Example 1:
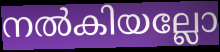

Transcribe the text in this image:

നൽകിയല്ലോ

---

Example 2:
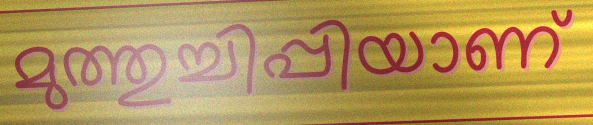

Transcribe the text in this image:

മുത്തുച്ചിപ്പിയാണ്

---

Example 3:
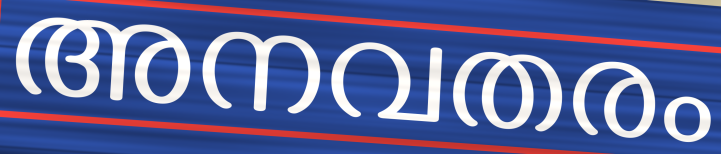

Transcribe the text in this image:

അനവതരം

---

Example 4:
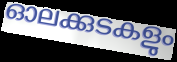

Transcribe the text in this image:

ഓലക്കുടകളും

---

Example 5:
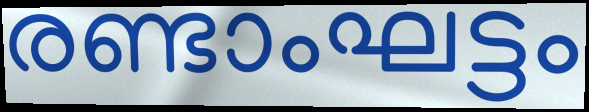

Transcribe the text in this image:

രണ്ടാംഘട്ടം